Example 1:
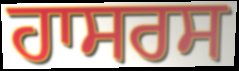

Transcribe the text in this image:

ਹਾਸਰਸ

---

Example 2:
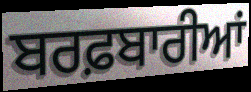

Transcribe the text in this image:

ਬਰਫ਼ਬਾਰੀਆਂ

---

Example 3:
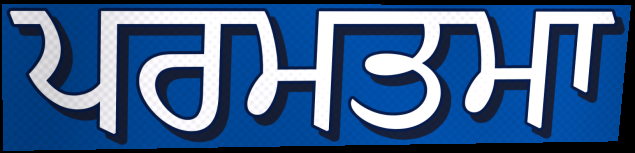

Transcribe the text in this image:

ਪਰਮਤਮਾ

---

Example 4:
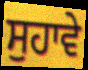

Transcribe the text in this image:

ਸੁਹਾਵੇ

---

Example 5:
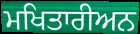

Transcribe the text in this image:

ਮਖਿਤਾਰੀਅਨ